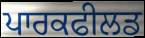
ਪਾਰਕਫੀਲਡ